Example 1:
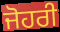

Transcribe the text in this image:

ਜੋਹਰੀ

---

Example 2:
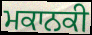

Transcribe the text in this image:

ਮਕਾਨਕੀ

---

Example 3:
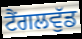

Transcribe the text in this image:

ਟੈਂਗਲਵੁੱਡ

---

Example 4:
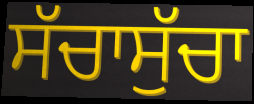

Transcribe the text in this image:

ਸੱਚਾਸੁੱਚਾ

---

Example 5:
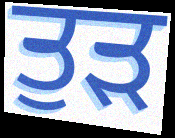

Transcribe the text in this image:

ਤੁੜ